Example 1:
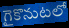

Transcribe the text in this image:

గైకొనుటలో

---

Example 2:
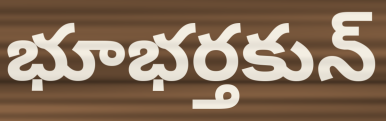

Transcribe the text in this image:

భూభర్తకున్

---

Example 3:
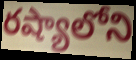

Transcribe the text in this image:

రష్యాలోని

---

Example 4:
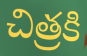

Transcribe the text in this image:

చిత్రకి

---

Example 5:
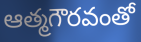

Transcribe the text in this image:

ఆత్మగౌరవంతో